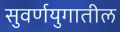
सुवर्णयुगातील